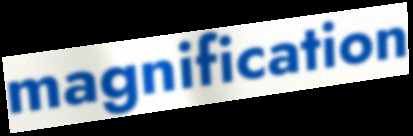
magnification